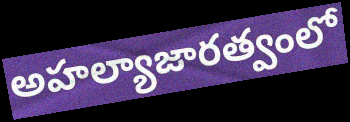
అహల్యాజారత్వంలో